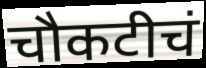
चौकटीचं